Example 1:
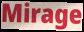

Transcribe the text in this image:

Mirage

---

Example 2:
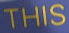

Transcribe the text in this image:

THIS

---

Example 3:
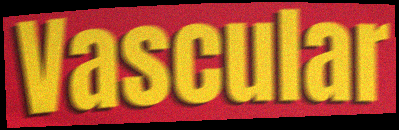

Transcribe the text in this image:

Vascular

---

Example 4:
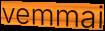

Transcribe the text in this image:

vemmai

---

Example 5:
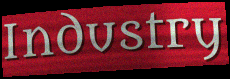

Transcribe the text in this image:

Industry